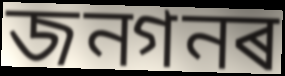
জনগনৰ